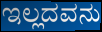
ಇಲ್ಲದವನು